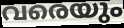
വരെയും